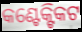
କଣ୍ଟେକ୍ଟିକଟ